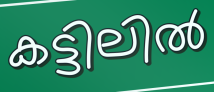
കട്ടിലിൽ